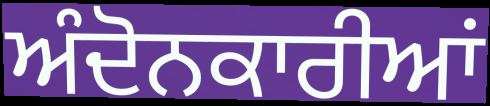
ਅੰਦੋਨਕਾਰੀਆਂ